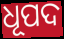
ଧୂପଦ